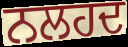
ਨਲਹਦ